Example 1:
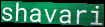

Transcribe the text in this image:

shavari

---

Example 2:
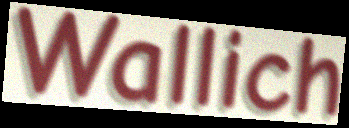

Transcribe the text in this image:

Wallich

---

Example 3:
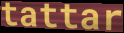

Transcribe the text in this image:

tattar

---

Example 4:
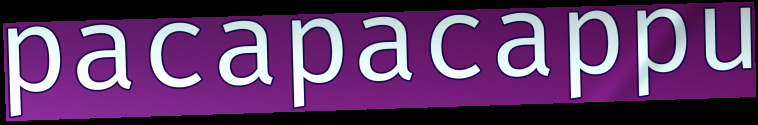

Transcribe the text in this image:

pacapacappu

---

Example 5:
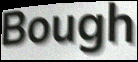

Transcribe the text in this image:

Bough